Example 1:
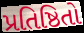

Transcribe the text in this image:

પ્રતિષ્ઠિતો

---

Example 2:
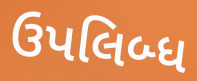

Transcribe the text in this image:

ઉપલિબ્ધ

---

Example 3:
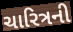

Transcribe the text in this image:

ચારિત્રની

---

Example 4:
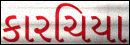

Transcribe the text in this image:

કારચિયા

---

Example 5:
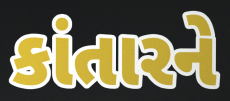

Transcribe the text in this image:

કાંતારને